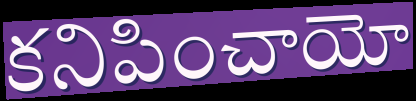
కనిపించాయో